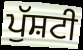
ਪੁੱਸ਼ਟੀ